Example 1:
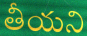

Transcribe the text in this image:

తీయని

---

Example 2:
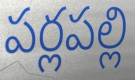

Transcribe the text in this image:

పర్లపల్లి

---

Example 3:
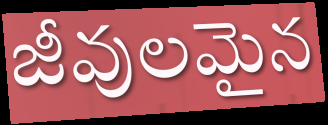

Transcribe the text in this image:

జీవులమైన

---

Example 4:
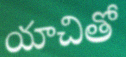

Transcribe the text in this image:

యాచితో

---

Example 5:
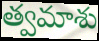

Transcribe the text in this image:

త్వమాశు